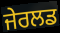
ਜੇਰਲਡ